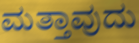
ಮತ್ತಾವುದು